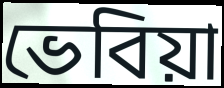
ভেবিয়া